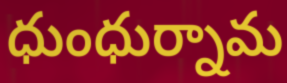
ధుంధుర్నామ